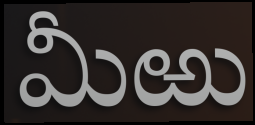
మీఱు